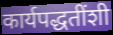
कार्यपद्धतींशी